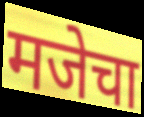
मजेचा